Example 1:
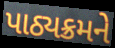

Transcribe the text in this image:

પાઠ્યક્રમને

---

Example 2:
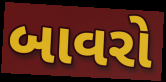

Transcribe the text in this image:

બાવરો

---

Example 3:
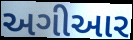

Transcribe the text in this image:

અગીઆર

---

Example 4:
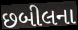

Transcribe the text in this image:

છબીલના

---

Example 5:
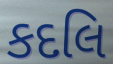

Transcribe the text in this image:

કદલિ